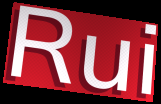
Rui